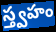
స్త్వహం